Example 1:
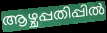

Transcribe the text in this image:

ആഴ്ചപ്പതിപ്പിൽ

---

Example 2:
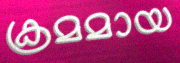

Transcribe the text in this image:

ക്രമമായ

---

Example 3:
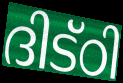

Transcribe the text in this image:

ദിട്ഠി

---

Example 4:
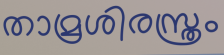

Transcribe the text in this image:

താമ്രശിരസ്ത്രം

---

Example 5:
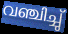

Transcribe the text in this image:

വഞ്ചിച്ചു്